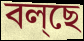
বল্ছে